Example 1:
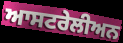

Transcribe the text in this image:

ਆਸਟਰੇਲੀਅਨ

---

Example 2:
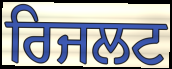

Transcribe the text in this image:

ਰਿਜਲਟ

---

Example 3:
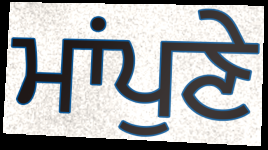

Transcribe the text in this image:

ਮਾਂਪੁਣੇ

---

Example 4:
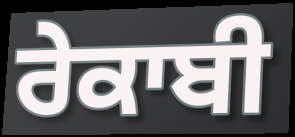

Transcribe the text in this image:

ਰੇਕਾਬੀ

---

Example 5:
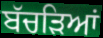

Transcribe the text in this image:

ਬੱਚੜਿਆਂ